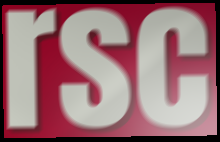
rsc